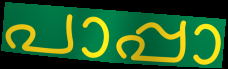
പാപ്പാ